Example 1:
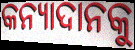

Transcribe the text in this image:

କନ୍ୟାଦାନକୁ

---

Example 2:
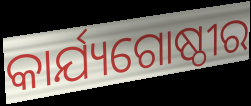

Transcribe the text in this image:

କାର୍ଯ୍ୟଗୋଷ୍ଠୀର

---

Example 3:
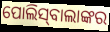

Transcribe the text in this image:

ପୋଲିସ୍‌ବାଲାଙ୍କର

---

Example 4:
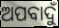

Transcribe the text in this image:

ଅପବାଦୁଁ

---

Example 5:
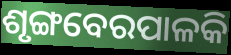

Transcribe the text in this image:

ଶୃଙ୍ଗବେରପାଳକି